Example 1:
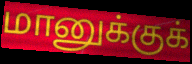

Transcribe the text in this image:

மானுக்குக்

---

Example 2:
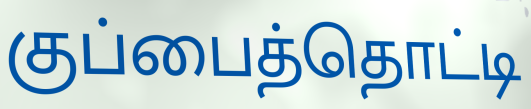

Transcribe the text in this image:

குப்பைத்தொட்டி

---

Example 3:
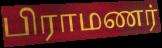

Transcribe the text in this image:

பிராமணர்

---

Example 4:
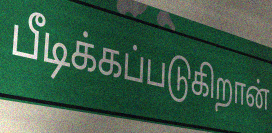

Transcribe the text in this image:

பீடிக்கப்படுகிறான்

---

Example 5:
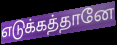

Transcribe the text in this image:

எடுக்கத்தானே